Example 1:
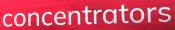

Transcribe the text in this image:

concentrators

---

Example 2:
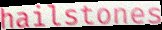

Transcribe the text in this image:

hailstones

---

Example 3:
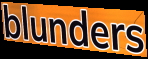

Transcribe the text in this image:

blunders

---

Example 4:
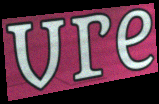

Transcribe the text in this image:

ure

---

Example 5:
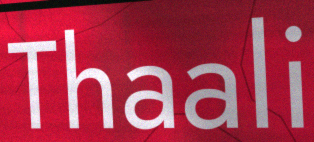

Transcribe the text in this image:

Thaali